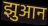
झुआन